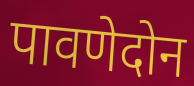
पावणेदोन